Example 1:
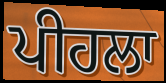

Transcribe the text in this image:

ਪੀਹਲਾ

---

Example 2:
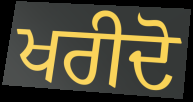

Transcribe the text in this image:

ਖਰੀਦੋ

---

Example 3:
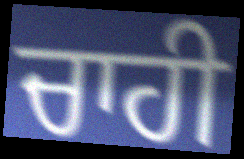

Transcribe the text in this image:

ਚਾਹੀ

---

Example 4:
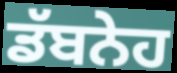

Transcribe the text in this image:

ਡੱਬਨੇਹ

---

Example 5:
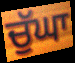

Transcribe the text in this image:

ਚੁੱਘਾ